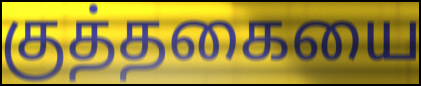
குத்தகையை